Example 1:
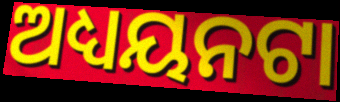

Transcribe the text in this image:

ଅଧ୍ୟୟନଟା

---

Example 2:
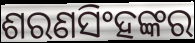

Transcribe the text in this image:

ଶରଣସିଂହଙ୍କର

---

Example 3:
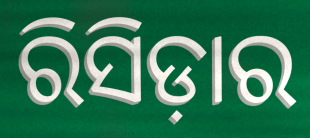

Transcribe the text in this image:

ରିସିଡ଼ାର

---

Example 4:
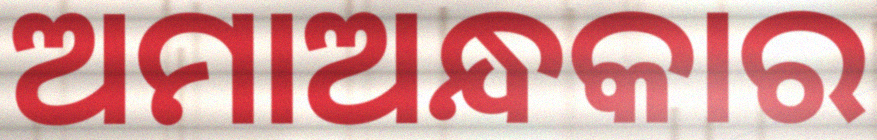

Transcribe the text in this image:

ଅମାଅନ୍ଧକାର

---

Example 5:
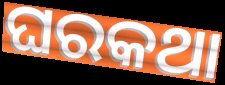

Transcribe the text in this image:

ଘରକଥା